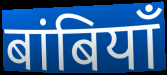
बांबियाँ